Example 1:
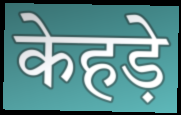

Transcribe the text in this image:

केहड़े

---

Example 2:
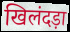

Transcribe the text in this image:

खिलंदड़ा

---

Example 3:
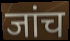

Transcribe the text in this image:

जांच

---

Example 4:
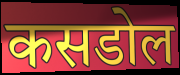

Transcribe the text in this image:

कसडोल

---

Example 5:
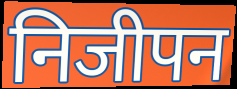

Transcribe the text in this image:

निजीपन